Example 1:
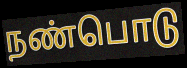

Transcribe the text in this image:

நண்பொடு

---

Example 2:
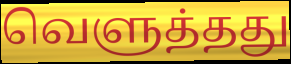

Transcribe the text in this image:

வெளுத்தது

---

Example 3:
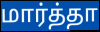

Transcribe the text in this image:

மார்த்தா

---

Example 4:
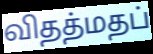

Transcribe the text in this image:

விதத்மதப்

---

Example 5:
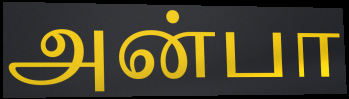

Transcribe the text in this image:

அன்பா